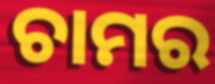
ଚାମର